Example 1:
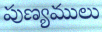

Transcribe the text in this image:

పుణ్యములు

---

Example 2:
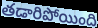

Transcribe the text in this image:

తడారిపోయింది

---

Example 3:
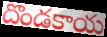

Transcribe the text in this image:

దొండకాయ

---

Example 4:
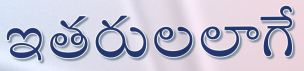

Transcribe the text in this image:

ఇతరులలాగే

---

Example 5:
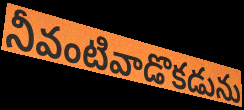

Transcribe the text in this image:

నీవంటివాడొకడును